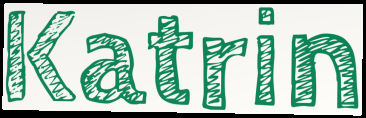
Katrin